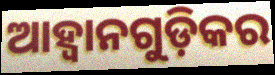
ଆହ୍ୱାନଗୁଡ଼ିକର